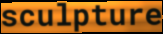
sculpture